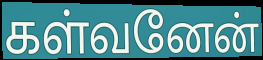
கள்வனேன்